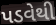
પડવેથી